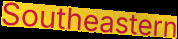
Southeastern